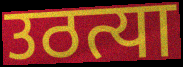
उठत्या